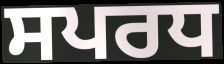
ਸਪਰਧ